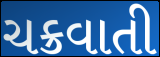
ચક્રવાતી